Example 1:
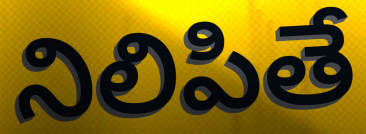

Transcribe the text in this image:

నిలిపితే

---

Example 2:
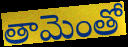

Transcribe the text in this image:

తామెంతో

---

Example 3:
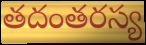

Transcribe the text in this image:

తదంతరస్య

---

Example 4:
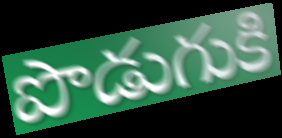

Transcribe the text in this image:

పొడుగుకి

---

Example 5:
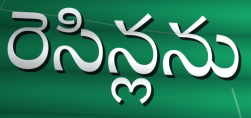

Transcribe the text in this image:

రెసిన్లను